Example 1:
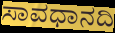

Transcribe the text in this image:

ಸಾವಧಾನದಿ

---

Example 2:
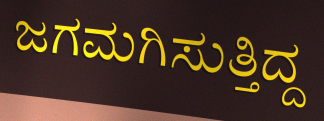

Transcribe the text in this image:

ಜಗಮಗಿಸುತ್ತಿದ್ದ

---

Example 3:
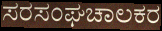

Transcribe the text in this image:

ಸರಸಂಘಚಾಲಕರ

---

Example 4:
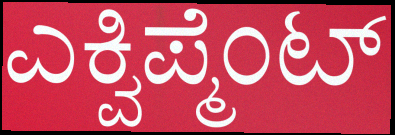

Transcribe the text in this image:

ಎಕ್ವಿಪ್ಮೆಂಟ್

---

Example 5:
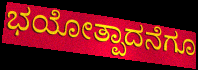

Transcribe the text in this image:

ಭಯೋತ್ಪಾದನೆಗೂ